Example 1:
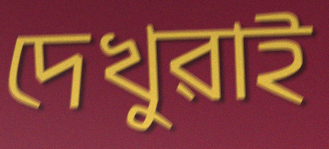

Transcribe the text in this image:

দেখুৱাই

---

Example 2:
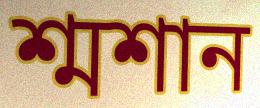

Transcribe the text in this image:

শ্মশান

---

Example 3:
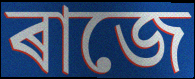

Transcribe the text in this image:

ৰাজে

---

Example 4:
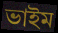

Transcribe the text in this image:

ভাইম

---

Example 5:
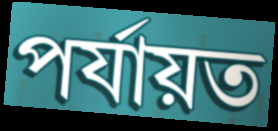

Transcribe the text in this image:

পৰ্যায়ত